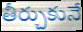
తీర్చుకునే